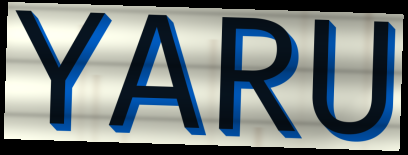
YARU